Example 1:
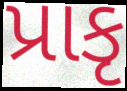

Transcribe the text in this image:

પ્રાકૃ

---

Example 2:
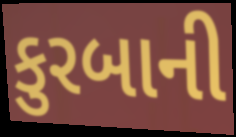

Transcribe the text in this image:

કુરબાની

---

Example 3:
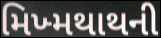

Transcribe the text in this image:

મિખ્મથાથની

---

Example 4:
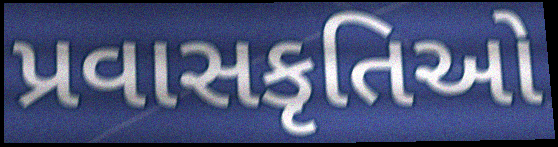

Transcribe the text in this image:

પ્રવાસકૃતિઓ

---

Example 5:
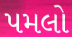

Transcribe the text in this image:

પમલો